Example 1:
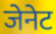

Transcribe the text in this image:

जेनेट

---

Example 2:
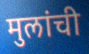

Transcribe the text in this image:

मुलांची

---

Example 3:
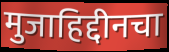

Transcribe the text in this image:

मुजाहिद्दीनचा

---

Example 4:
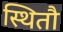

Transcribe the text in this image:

स्थितौ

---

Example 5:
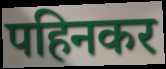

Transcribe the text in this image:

पहिनकर